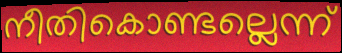
നീതികൊണ്ടല്ലെന്ന്